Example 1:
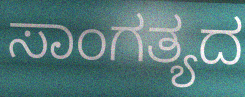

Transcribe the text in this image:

ಸಾಂಗತ್ಯದ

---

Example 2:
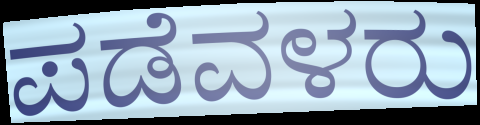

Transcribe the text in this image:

ಪಡೆವಳರು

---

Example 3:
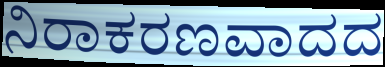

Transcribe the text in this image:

ನಿರಾಕರಣವಾದದ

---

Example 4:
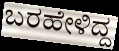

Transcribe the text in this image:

ಬರಹೇಳಿದ್ದ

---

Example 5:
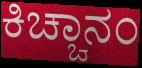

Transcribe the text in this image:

ಕಿಚ್ಚಾನಂ